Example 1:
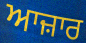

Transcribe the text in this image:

ਆਜ਼ਾਰ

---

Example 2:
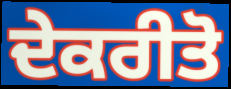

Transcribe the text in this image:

ਦੇਕਰੀਤੋ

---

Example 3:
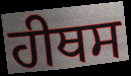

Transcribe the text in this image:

ਹੀਥਸ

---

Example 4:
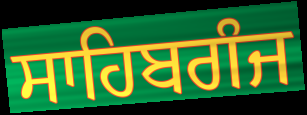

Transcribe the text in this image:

ਸਾਹਿਬਗੰਜ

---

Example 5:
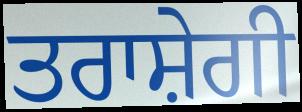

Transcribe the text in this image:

ਤਰਾਸ਼ੇਗੀ